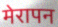
मेरापन